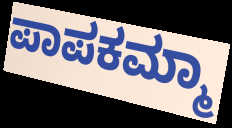
ಪಾಪಕಮ್ಮಾ